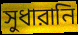
সুধারানি